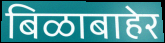
बिळाबाहेर